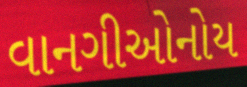
વાનગીઓનોય